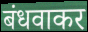
बंधवाकर